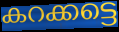
കറക്കട്ടെ